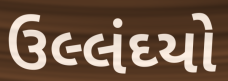
ઉલ્લંઘ્યો